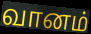
வானம்